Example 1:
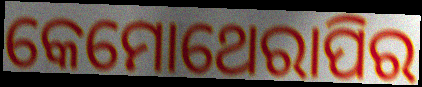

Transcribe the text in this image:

କେମୋଥେରାପିର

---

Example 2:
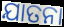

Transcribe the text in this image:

ଯାତନା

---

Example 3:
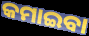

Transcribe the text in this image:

କମାଇବା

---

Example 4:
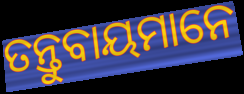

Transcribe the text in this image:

ତନ୍ତୁବାୟମାନେ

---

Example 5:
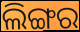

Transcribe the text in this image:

ଲିଙ୍ଗର